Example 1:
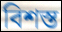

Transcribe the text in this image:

বিশস্ত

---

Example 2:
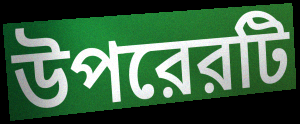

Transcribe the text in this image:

উপরেরটি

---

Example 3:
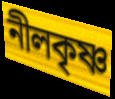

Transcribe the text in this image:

নীলকৃষ্ণ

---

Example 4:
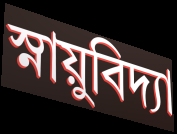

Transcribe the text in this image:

স্নায়ুবিদ্যা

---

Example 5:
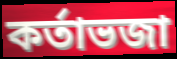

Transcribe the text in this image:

কর্তাভজা